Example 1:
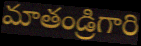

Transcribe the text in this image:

మాతండ్రిగారి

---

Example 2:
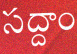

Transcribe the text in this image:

సద్దాం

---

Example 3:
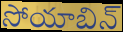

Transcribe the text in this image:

సోయాబిన్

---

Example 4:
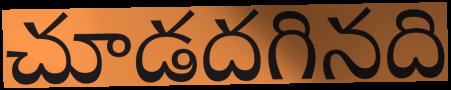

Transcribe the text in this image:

చూడదగినది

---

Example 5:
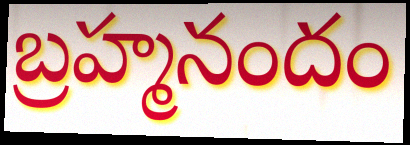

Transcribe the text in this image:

బ్రహ్మనందం